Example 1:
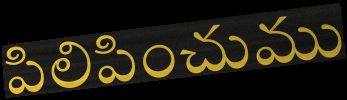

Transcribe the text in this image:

పిలిపించుము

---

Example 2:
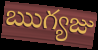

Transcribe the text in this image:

ఋగ్యజు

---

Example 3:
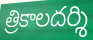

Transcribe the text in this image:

త్రికాలదర్శి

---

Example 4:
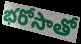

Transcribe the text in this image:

భరోసాతో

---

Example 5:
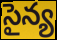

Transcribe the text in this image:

సైన్య